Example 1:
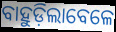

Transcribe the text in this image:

ବାହୁଡ଼ିଲାବେଳେ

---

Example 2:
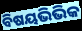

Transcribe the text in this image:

ବିଷୟଭିଭିକ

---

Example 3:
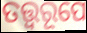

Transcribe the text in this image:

ତତ୍ତ୍ୱରୂପେ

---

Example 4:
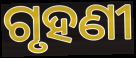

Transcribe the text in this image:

ଗୃହଣୀ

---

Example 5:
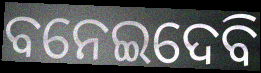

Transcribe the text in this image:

ବନେଇଦେବି